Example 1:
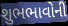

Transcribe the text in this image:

શુભભાવોની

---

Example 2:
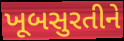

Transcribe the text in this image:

ખૂબસુરતીને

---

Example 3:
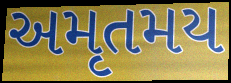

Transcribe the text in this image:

અમૃતમય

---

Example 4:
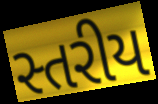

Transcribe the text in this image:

સ્તરીય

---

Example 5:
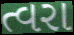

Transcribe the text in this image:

ત્વરા